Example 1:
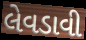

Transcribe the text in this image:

લેવડાવી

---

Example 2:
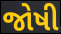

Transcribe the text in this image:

જોષી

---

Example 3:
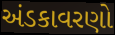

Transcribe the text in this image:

અંડકાવરણો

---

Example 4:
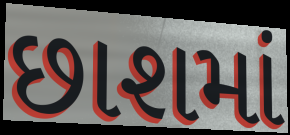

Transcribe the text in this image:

છાશમાં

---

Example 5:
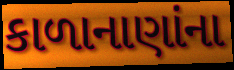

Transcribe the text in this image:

કાળાનાણાંના